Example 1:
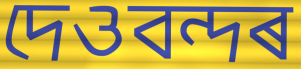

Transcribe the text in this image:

দেওবন্দৰ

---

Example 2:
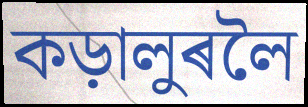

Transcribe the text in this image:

কড়ালুৰলৈ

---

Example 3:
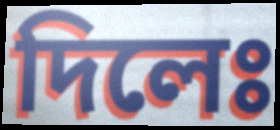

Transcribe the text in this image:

দিলেঃ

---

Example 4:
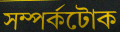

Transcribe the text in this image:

সম্পৰ্কটোক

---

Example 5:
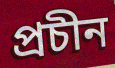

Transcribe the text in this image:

প্ৰচীন